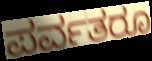
ಪರ್ವತರೂ